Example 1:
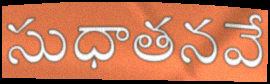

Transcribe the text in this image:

సుధాతనవే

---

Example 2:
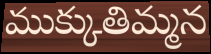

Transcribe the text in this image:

ముక్కుతిమ్మన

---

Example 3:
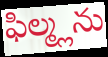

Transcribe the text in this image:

ఫిల్మ్లను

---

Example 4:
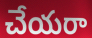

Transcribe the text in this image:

చేయరా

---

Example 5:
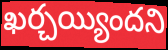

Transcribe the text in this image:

ఖర్చయ్యిందని